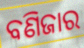
ବଣିଜାର